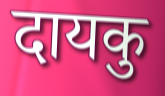
दायकु